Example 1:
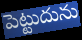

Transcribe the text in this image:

పెట్టుదును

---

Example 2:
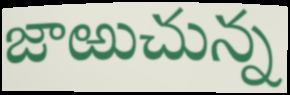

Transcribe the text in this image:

జాఱుచున్న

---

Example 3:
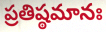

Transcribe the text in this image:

ప్రతిష్ఠమానః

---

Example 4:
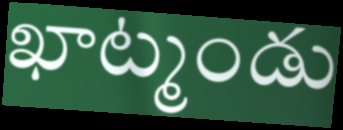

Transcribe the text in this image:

ఖాట్మండు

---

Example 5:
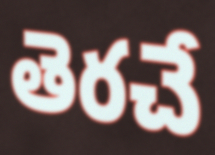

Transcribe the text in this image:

తెరచే